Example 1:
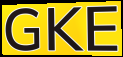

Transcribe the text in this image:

GKE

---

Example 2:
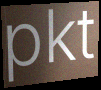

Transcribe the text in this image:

pkt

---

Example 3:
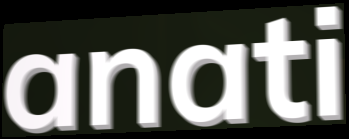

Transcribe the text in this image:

anati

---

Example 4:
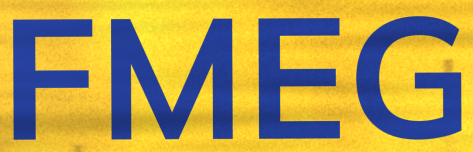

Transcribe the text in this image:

FMEG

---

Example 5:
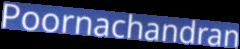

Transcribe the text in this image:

Poornachandran